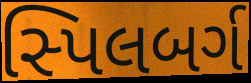
સ્પિલબર્ગ